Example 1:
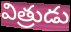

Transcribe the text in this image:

విత్రుడు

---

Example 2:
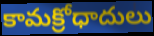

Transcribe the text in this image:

కామక్రోధాదులు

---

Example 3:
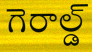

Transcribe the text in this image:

గెరాల్డ్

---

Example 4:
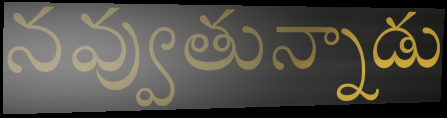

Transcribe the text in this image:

నవ్వుతున్నాడు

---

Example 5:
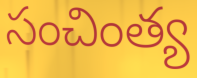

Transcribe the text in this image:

సంచింత్య